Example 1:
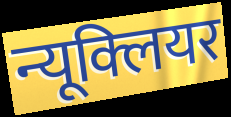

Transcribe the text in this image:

न्‍यूक्‍लियर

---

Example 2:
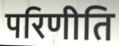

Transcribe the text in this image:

परिणीति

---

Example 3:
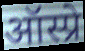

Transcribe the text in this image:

ऑस्प्रे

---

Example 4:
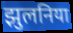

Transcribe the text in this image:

झुलनिया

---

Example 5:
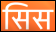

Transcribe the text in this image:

सिस